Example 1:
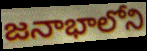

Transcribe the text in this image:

జనాభాలోని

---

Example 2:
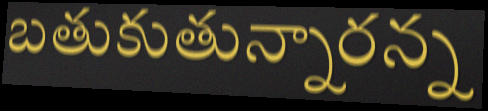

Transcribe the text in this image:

బతుకుతున్నారన్న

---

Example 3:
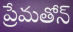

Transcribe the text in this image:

ప్రేమతోన్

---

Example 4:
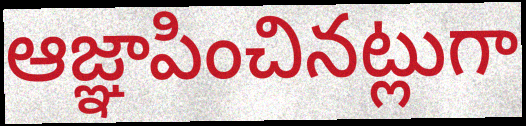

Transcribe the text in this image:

ఆజ్ఞాపించినట్లుగా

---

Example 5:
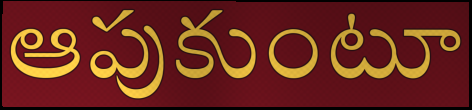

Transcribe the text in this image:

ఆపుకుంటూ